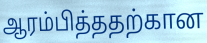
ஆரம்பித்ததற்கான